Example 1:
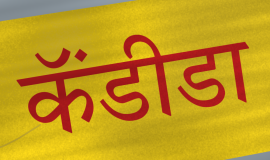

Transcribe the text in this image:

कॅंडीडा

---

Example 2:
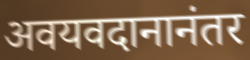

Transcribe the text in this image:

अवयवदानानंतर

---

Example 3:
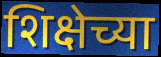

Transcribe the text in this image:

शिक्षेच्या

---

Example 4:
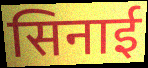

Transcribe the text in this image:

सिनाई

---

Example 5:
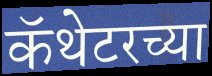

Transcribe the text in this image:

कॅथेटरच्या